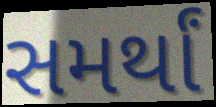
સમર્થાં